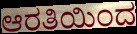
ಆರತಿಯಿಂದ